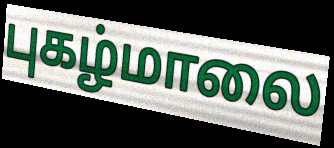
புகழ்மாலை